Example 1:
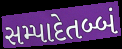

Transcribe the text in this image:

સમ્પાદેતબ્બં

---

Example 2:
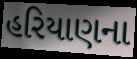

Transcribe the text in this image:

હરિયાણના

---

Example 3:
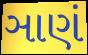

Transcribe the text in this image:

ઞાણં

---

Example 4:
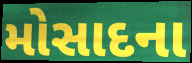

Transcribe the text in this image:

મોસાદના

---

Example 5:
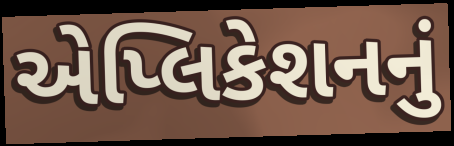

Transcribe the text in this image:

એપ્લિકેશનનું